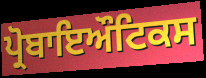
ਪ੍ਰੋਬਾਇਔਟਿਕਸ